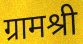
ग्रामश्री